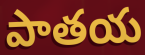
పాతయ